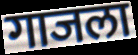
गाजला